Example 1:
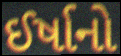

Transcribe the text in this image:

ઈર્ષાનો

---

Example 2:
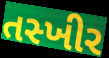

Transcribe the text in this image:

તસ્ખીર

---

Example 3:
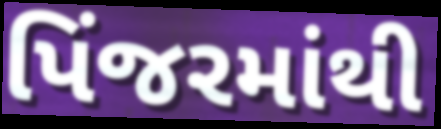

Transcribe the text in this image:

પિંજરમાંથી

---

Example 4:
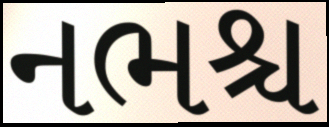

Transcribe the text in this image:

નભશ્ચ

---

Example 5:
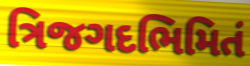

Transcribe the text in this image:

ત્રિજગદભિમિતં